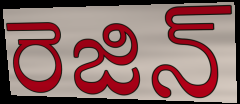
రెజిన్